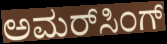
ಅಮರ್‌ಸಿಂಗ್